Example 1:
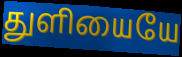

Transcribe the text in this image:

துளியையே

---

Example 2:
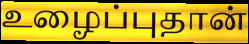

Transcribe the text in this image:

உழைப்புதான்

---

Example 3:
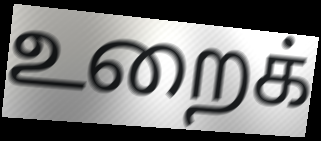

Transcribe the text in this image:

உறைக்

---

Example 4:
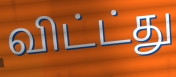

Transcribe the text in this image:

விட்ட்து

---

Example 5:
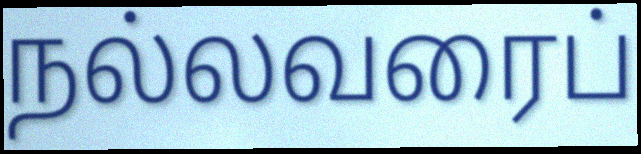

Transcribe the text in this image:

நல்லவரைப்